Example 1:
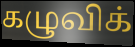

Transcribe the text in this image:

கழுவிக்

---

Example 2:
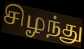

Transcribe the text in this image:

சிழந்து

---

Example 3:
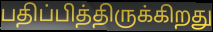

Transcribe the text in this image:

பதிப்பித்திருக்கிறது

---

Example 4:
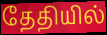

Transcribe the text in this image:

தேதியில்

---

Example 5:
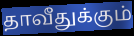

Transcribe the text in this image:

தாவீதுக்கும்